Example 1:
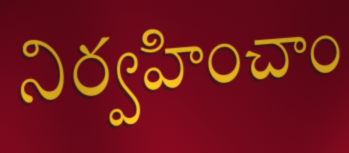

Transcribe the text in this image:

నిర్వహించాం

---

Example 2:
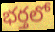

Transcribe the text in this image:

భర్తలో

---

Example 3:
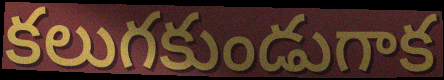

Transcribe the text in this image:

కలుగకుండుగాక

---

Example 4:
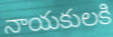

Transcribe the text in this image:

నాయకులకి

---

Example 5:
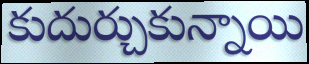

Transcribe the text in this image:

కుదుర్చుకున్నాయి